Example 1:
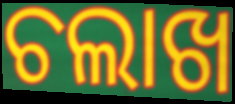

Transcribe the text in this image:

ଚଲାଖ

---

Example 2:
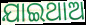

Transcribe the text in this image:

ଯାଇଥାଅ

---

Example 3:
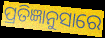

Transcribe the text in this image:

ପ୍ରତିଜ୍ଞାନୁସାରେ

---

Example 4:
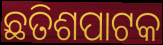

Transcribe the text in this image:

ଛତିଶପାଟକ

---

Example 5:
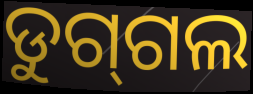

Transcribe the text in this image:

ଡୁଗ୍‌ଗଲ